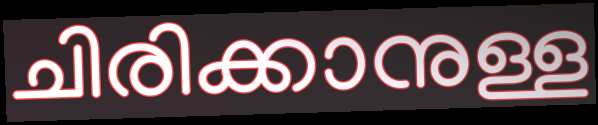
ചിരിക്കാനുള്ള